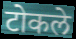
टोकले